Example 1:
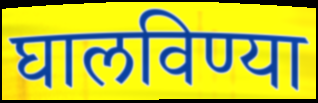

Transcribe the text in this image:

घालविण्या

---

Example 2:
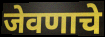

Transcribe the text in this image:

जेवणाचे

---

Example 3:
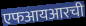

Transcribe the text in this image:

एफआयआरची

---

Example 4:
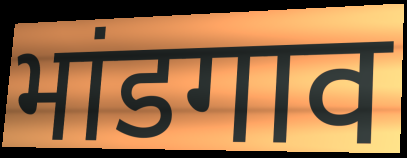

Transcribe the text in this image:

भांडगाव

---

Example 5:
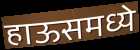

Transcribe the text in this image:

हाऊसमध्ये